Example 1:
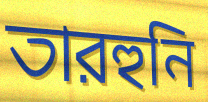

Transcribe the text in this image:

তারহুনি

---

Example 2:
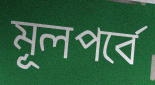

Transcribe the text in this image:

মূলপর্বে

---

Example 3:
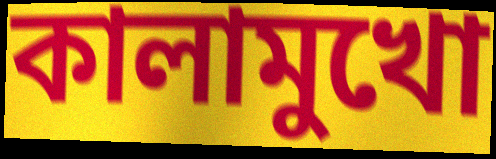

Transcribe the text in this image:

কালামুখো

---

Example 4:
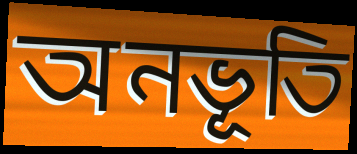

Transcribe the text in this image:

অনভূতি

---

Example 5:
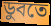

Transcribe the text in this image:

ডুবতে